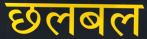
छलबल